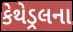
કેથેડ્રલના